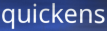
quickens